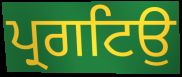
ਪ੍ਰਗਟਿਉ